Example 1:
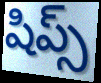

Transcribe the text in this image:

షిప్స్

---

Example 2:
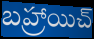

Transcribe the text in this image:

బహ్రాయిచ్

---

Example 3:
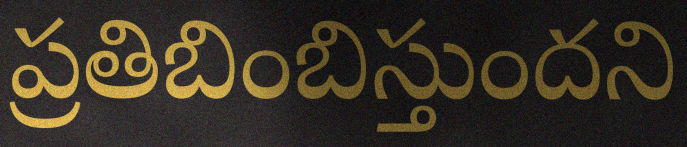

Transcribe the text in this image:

ప్రతిబింబిస్తుందని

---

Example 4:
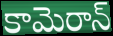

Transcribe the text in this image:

కామెరాన్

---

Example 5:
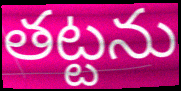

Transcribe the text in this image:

తట్టను